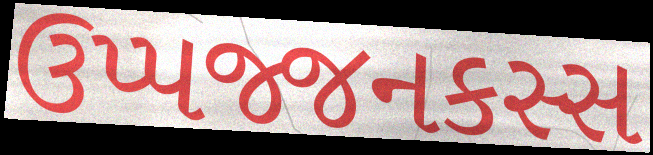
ઉપ્પજ્જનકસ્સ